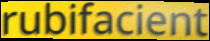
rubifacient